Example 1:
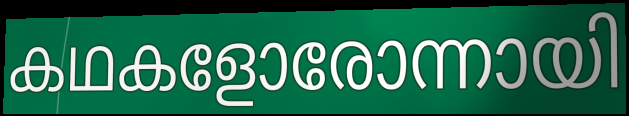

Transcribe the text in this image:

കഥകളോരോന്നായി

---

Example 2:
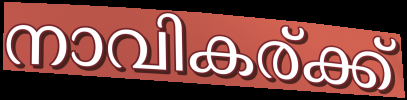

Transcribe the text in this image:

നാവികര്ക്ക്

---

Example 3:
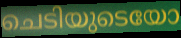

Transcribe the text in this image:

ചെടിയുടെയോ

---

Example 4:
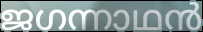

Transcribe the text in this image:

ജഗന്നാഥൻ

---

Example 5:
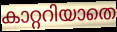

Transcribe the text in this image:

കാറ്ററിയാതെ